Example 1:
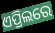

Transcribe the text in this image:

ଏପ୍ରିଲରେ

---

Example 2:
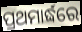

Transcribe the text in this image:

ପ୍ରଥମାର୍ଦ୍ଧରେ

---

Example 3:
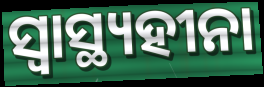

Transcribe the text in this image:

ସ୍ଵାସ୍ଥ୍ୟହୀନା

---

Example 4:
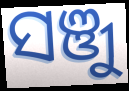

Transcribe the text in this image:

ସଞ୍ଜୁ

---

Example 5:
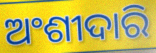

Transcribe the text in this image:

ଅଂଶୀଦାରି